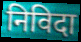
निविदा